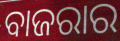
ବାଜରାର